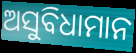
ଅସୁବିଧାମାନ